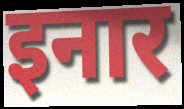
इनार